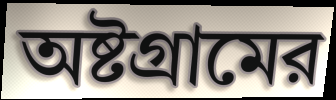
অষ্টগ্রামের